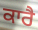
ਕਾਰੈ